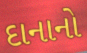
દાનાનો